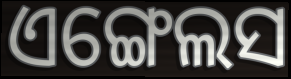
ଏଙ୍ଗେଲସ